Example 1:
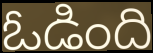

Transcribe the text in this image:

ఓడింది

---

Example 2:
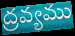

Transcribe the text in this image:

ద్రవ్యము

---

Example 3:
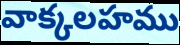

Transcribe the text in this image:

వాక్కలహము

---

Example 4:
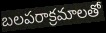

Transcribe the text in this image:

బలపరాక్రమాలతో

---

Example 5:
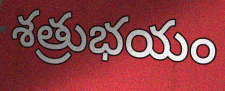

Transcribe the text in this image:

శత్రుభయం